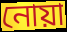
নোয়া